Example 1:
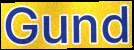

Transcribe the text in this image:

Gund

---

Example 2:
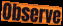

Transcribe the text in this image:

Observe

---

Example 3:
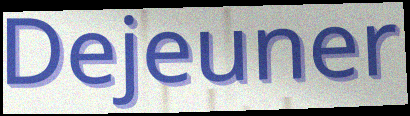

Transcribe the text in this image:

Dejeuner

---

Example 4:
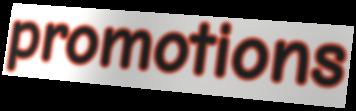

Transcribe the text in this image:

promotions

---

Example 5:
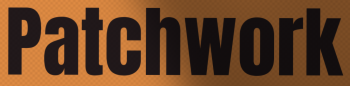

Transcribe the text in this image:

Patchwork